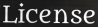
License